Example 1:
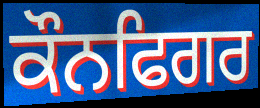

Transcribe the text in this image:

ਕੌਨਫਿਗਰ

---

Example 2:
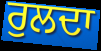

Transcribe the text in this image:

ਰੁਲਦਾ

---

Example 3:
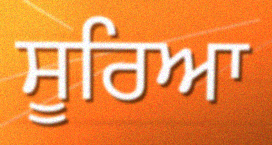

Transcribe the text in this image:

ਸੂਰਿਆ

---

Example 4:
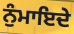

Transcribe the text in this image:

ਨੁੰਮਾਇਦੇ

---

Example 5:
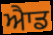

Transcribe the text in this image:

ਐਾਡ